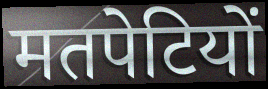
मतपेटियों